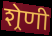
श्रेणी